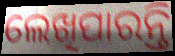
ଲେଖିପାରନ୍ତି